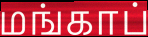
மங்காப்